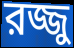
রজ্জু